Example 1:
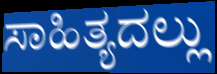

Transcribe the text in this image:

ಸಾಹಿತ್ಯದಲ್ಲು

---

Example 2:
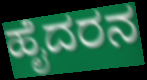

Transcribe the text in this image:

ಹೈದರನ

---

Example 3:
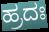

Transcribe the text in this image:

ಹ್ರದಃ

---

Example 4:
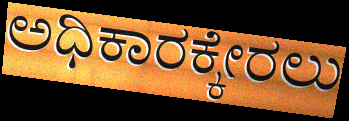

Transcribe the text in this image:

ಅಧಿಕಾರಕ್ಕೇರಲು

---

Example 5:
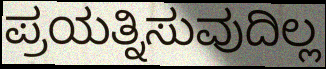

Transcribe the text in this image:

ಪ್ರಯತ್ನಿಸುವುದಿಲ್ಲ